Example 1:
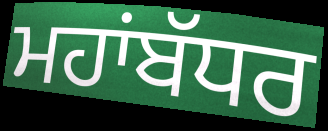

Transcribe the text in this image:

ਮਹਾਂਬੱਧਰ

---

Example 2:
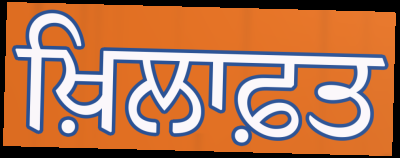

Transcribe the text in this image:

ਖ਼ਿਲਾਫ਼ਤ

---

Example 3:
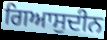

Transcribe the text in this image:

ਗਿਆਸੁਦੀਨ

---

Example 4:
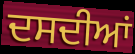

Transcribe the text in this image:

ਦਸਦੀਆਂ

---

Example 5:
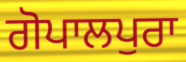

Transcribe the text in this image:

ਗੋਪਾਲਪੁਰਾ